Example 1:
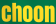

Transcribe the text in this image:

choon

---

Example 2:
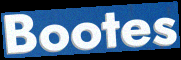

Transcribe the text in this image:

Bootes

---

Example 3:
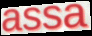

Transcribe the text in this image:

assa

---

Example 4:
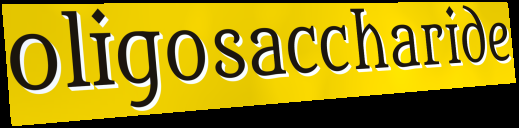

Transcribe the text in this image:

oligosaccharide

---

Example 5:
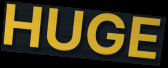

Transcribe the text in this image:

HUGE